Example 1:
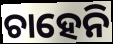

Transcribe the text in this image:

ଚାହେନି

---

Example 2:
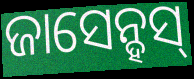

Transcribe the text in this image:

ଜାସେନ୍ହସ୍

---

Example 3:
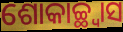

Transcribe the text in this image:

ଶୋକାଚ୍ଛ୍ୱାସ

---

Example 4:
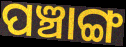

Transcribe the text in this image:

ପଞ୍ଚାଙ୍ଗ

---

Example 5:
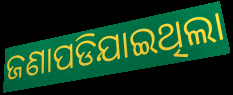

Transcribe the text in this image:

ଜଣାପଡିଯାଇଥିଲା